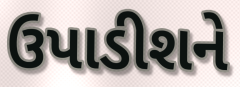
ઉપાડીશને